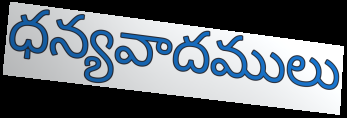
ధన్యవాదములు